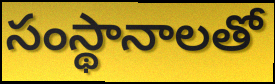
సంస్థానాలతో